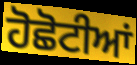
ਹੋਛੋਟੀਆਂ